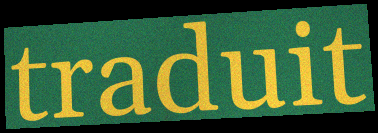
traduit